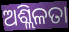
ଅଶ୍ଲିଳତା